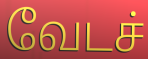
வேடச்